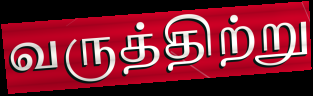
வருத்திற்று